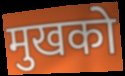
मुखको